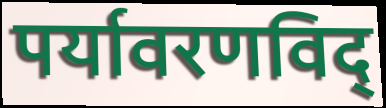
पर्यावरणविद्